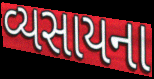
વ્યસાયના